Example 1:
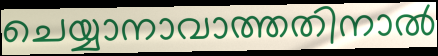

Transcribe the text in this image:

ചെയ്യാനാവാത്തതിനാൽ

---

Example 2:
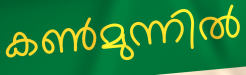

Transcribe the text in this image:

കൺമുന്നിൽ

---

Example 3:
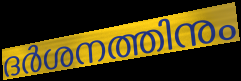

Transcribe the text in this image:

ദർശനത്തിനും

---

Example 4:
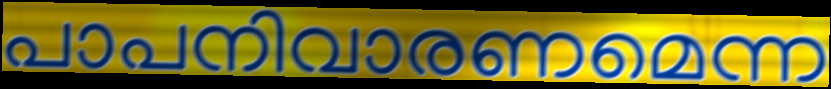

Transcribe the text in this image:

പാപനിവാരണമെന്ന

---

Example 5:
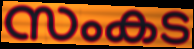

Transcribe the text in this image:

സംകട